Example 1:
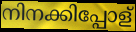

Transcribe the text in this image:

നിനക്കിപ്പോള്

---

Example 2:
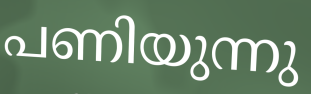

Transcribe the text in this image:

പണിയുന്നു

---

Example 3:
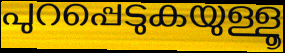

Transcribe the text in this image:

പുറപ്പെടുകയുള്ളൂ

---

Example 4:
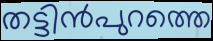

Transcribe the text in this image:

തട്ടിൻപുറത്തെ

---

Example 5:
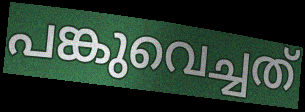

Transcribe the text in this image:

പങ്കുവെച്ചത്